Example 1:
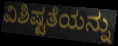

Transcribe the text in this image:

ವಿಶಿಷ್ಟತೆಯನ್ನು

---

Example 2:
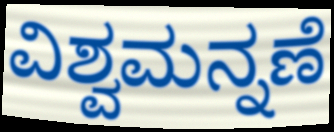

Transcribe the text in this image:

ವಿಶ್ವಮನ್ನಣೆ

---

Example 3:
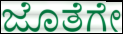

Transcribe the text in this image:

ಜೊತೆಗೇ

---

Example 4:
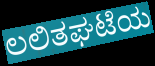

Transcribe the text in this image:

ಲಲಿತಘಟೆಯ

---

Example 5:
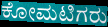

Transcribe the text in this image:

ಕೋಮಟಿಗರು